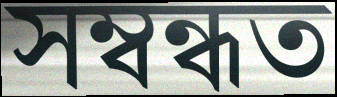
সম্বন্ধত